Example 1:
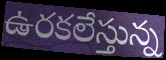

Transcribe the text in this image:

ఉరకలేస్తున్న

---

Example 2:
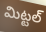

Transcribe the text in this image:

మిట్టల్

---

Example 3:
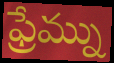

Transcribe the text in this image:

ఫ్రేమ్ను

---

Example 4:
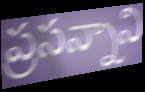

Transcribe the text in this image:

ప్రసన్నాని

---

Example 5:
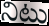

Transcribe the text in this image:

నిటు